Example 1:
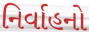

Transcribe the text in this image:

નિર્વાહનો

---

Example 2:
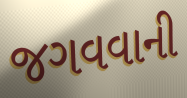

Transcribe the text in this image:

જગવવાની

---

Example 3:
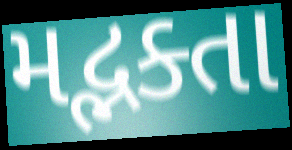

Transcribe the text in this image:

મદ્ભક્તા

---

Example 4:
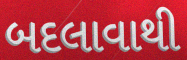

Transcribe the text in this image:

બદલાવાથી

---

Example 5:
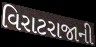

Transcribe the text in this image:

વિરાટરાજાની